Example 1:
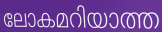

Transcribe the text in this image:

ലോകമറിയാത്ത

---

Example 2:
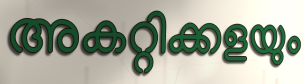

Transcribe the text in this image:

അകറ്റിക്കളയും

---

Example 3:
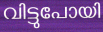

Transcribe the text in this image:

വിട്ടുപോയി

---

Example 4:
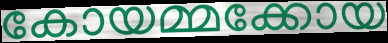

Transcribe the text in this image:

കോയമ്മക്കോയ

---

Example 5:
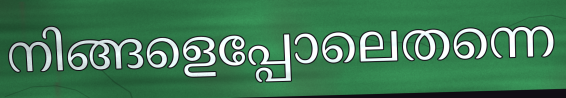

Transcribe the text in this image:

നിങ്ങളെപ്പോലെതന്നെ